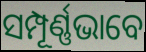
ସମ୍ପୂର୍ଣ୍ଣଭାବେ